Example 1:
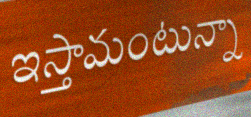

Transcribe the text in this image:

ఇస్తామంటున్నా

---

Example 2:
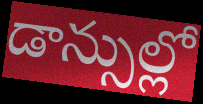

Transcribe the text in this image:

డాన్సుల్లో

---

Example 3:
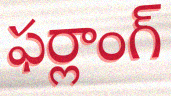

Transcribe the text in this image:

ఫర్లాంగ్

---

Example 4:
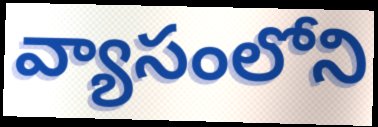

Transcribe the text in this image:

వ్యాసంలోని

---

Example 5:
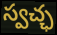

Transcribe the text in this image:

స్వచ్ఛ